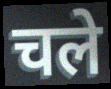
चले